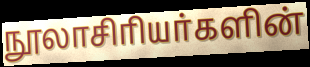
நூலாசிரியர்களின்